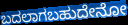
ಬದಲಾಗಬಹುದೇನೋ